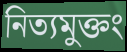
নিত্যমুক্তং